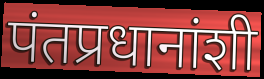
पंतप्रधानांशी